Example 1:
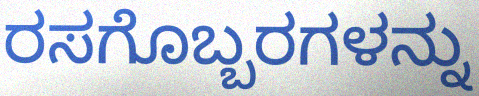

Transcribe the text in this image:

ರಸಗೊಬ್ಬರಗಳನ್ನು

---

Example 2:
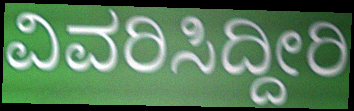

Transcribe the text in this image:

ವಿವರಿಸಿದ್ದೀರಿ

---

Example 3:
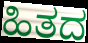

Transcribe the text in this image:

ಹಿತದ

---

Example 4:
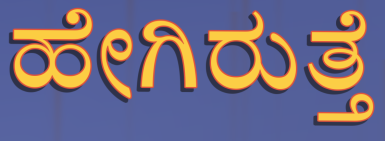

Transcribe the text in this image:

ಹೇಗಿರುತ್ತೆ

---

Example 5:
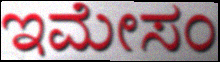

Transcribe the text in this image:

ಇಮೇಸಂ